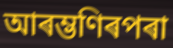
আৰম্ভণিৰপৰা